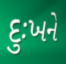
દુઃખને